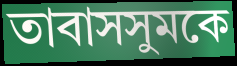
তাবাসসুমকে